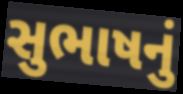
સુભાષનું